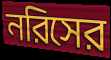
নরিসের